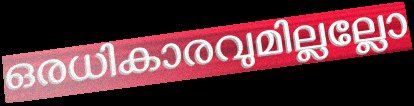
ഒരധികാരവുമില്ലല്ലോ